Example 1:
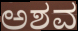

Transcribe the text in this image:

ಅಶವ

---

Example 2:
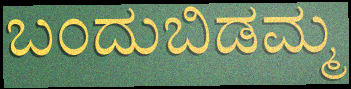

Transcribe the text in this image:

ಬಂದುಬಿಡಮ್ಮ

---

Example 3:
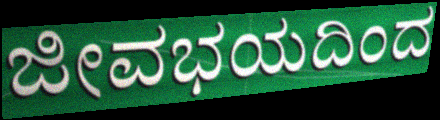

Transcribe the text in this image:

ಜೀವಭಯದಿಂದ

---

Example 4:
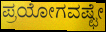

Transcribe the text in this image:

ಪ್ರಯೋಗವಷ್ಟೇ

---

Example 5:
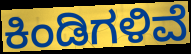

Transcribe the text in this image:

ಕಿಂಡಿಗಳಿವೆ